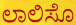
ಲಾಲಿಸೊ